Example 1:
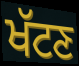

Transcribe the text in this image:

ਖੱਟਣ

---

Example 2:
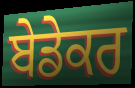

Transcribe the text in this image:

ਬੇਡੇਕਰ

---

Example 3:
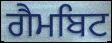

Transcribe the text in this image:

ਗੈਮਬਿਟ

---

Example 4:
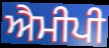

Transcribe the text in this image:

ਐਮੀਪੀ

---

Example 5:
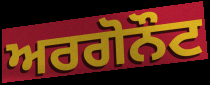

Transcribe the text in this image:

ਅਰਗੋਨੌਟ